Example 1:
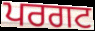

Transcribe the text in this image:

ਪਰਗਟ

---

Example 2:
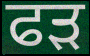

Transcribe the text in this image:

ਫੜ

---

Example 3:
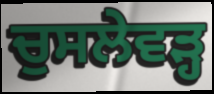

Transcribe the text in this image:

ਚੁਸਲੇਵੜ੍ਹ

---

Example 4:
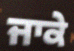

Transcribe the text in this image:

ਜਾਕੇ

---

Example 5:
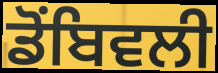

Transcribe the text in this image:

ਡੋਂਬਿਵਲੀ